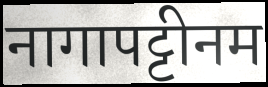
नागापट्टीनम